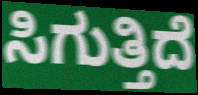
ಸಿಗುತ್ತಿದೆ